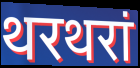
थरथरां